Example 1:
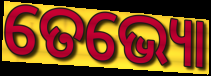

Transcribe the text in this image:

ତେଭ୍ୟୋ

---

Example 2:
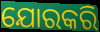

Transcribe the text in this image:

ଯୋରକରି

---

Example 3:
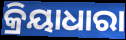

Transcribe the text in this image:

କ୍ରିୟାଧାରା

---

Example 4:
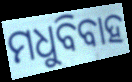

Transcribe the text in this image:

ମଧୁବିବାହ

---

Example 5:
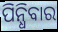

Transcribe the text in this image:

ପିନ୍ଧିବାର